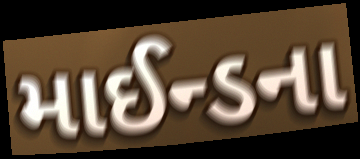
માઈન્ડના